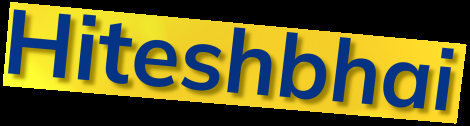
Hiteshbhai